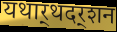
यथार्थदर्शन